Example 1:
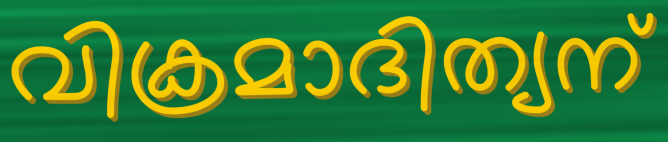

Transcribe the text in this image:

വിക്രമാദിത്യന്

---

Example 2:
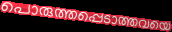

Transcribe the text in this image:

പൊരുത്തപ്പെടാത്തവയെ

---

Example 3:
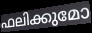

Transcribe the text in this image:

ഫലിക്കുമോ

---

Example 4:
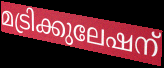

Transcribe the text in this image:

മട്രിക്കുലേഷന്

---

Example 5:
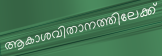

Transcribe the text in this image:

ആകാശവിതാനത്തിലേക്ക്